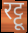
रट्टू